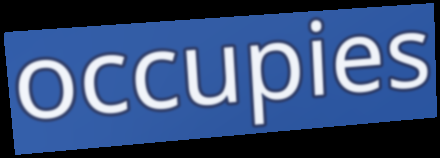
occupies